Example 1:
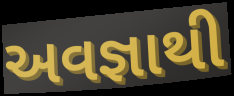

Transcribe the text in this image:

અવજ્ઞાથી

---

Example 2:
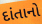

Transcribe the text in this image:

દાંતાનો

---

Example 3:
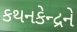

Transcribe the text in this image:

કથનકેન્દ્રને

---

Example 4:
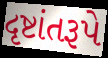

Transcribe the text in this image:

દૃષ્ટાંતરૂપે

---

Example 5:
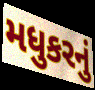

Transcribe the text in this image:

મધુકરનું